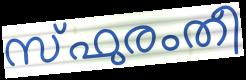
സ്ഫുരംതീ